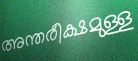
അന്തരീക്ഷമുള്ള